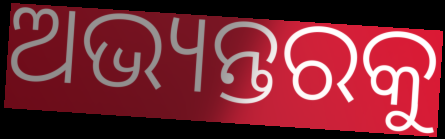
ଅଭ୍ୟନ୍ତରକୁ